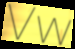
Vw